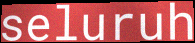
seluruh